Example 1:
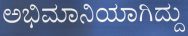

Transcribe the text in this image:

ಅಭಿಮಾನಿಯಾಗಿದ್ದು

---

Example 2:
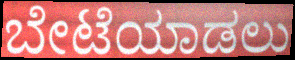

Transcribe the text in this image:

ಬೇಟೆಯಾಡಲು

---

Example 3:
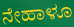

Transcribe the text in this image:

ನೇಹಾಳೂ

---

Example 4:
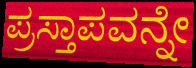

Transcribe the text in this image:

ಪ್ರಸ್ತಾಪವನ್ನೇ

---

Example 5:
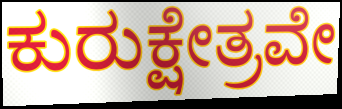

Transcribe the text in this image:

ಕುರುಕ್ಷೇತ್ರವೇ